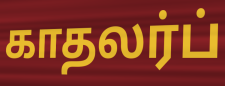
காதலர்ப்